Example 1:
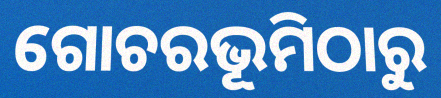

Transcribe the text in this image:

ଗୋଚରଭୂମିଠାରୁ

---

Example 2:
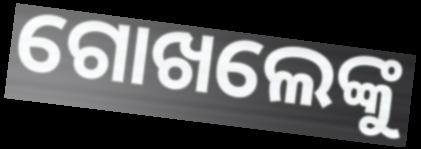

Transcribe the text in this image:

ଗୋଖଲେଙ୍କୁ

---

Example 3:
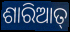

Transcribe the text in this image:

ଶାରିଆତ୍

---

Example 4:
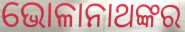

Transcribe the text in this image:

ଭୋଳାନାଥଙ୍କର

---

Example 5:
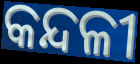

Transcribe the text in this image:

କନ୍ଦଳୀ